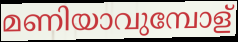
മണിയാവുമ്പോള്